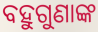
ବହୁଗୁଣାଙ୍କ